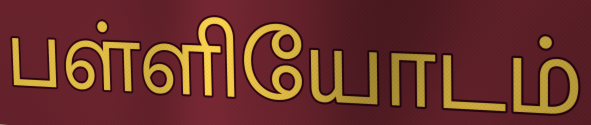
பள்ளியோடம்